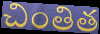
చింతిత